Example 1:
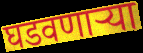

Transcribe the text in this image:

घडवणाऱ्या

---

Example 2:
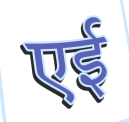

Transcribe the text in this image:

एई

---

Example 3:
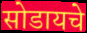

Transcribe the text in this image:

सोडायचे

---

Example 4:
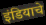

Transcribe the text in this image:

इंडियाचे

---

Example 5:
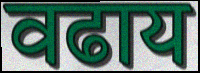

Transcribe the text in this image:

वढाय